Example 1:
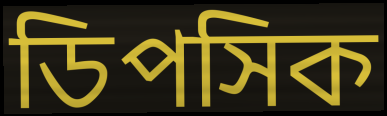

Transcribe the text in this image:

ডিপসিক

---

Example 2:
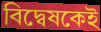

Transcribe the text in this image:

বিদ্বেষকেই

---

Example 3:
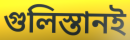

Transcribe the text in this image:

গুলিস্তানই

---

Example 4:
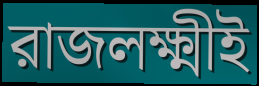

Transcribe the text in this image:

রাজলক্ষ্মীই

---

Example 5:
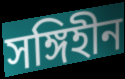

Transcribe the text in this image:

সঙ্গিহীন